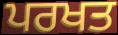
ਪਰਖਤ